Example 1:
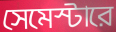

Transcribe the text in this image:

সেমেস্টারে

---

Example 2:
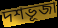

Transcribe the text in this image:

দশভূজা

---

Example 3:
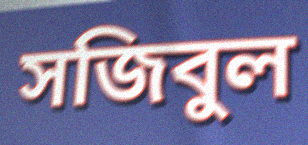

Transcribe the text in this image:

সজিবুল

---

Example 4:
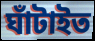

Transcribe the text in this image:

ঘাঁটাইত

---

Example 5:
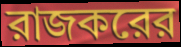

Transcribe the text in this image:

রাজকরের